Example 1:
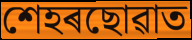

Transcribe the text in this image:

শেহৰছোৱাত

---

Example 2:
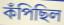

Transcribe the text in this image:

কঁপিছিল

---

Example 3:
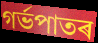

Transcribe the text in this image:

গৰ্ভপাতৰ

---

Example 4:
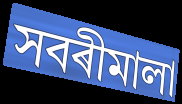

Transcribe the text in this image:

সবৰীমালা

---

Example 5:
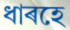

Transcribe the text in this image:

ধাৰহে